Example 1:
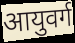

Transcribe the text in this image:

आयुवर्ग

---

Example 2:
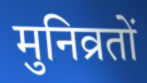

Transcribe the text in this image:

मुनिव्रतों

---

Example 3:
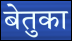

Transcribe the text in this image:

बेतुका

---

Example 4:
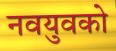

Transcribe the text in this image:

नवयुवको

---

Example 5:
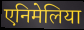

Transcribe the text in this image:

एनिमेलिया